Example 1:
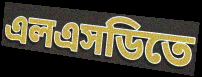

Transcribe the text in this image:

এলএসডিতে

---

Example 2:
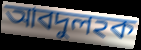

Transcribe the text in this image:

আবদুলহক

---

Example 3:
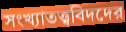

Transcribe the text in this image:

সংখ্যাতত্ত্ববিদদের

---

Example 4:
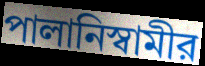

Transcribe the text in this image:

পালানিস্বামীর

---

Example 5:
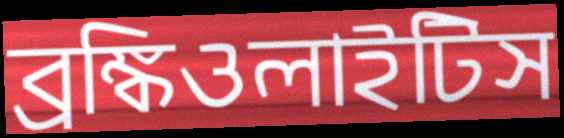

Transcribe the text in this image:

ব্রঙ্কিওলাইটিস